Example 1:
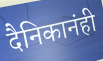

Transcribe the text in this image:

दैनिकानंही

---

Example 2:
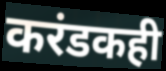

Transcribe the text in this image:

करंडकही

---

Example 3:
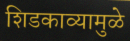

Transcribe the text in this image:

शिडकाव्यामुळे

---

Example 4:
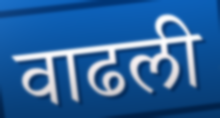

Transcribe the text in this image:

वाढली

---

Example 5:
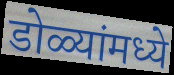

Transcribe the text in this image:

डोळ्यांमध्ये